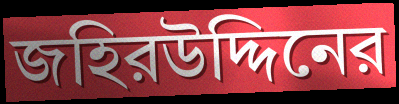
জহিরউদ্দিনের